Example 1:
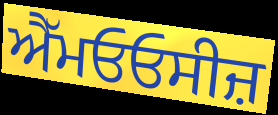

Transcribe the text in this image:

ਐੱਮਓਓਸੀਜ਼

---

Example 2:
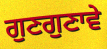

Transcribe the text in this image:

ਗੁਣਗੁਣਾਵੇ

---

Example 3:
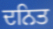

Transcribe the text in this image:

ਦਨਿਤ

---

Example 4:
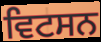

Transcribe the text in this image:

ਵਿਟਸਨ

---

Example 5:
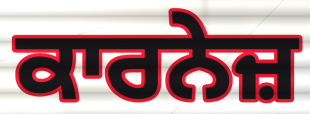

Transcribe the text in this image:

ਕਾਰਨੇਜ਼